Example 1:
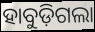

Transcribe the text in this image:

ହାବୁଡ଼ିଗଲା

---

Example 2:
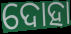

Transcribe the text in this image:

ଦୋହା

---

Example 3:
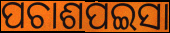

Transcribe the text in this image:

ପଚାଶପଇସା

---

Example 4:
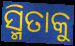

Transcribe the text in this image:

ସ୍ମିତାକୁ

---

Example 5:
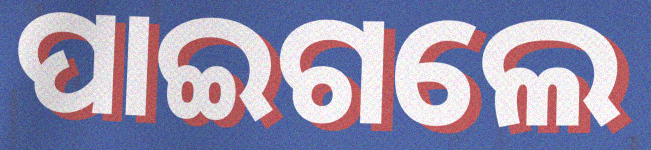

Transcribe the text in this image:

ପାଇଗଲେ